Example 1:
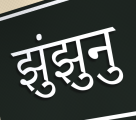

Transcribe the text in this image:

झुंझुनु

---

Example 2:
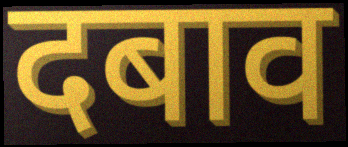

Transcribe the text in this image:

दबाव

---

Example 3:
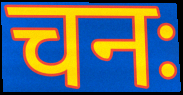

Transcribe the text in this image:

चनः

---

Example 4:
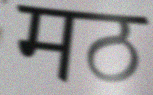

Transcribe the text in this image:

मठ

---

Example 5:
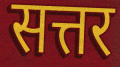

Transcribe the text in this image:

सत्तर